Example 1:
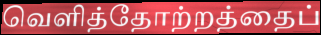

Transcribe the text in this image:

வெளித்தோற்றத்தைப்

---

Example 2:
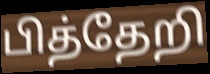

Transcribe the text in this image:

பித்தேறி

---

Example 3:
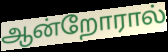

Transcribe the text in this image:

ஆன்றோரால்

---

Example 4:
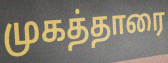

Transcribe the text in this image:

முகத்தாரை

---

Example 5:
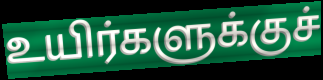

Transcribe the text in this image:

உயிர்களுக்குச்